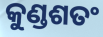
କୁଣ୍ଡଶତଂ